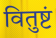
वितुष्टं